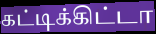
கட்டிக்கிட்டா